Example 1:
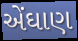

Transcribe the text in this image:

એંઘાણ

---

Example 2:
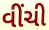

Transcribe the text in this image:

વીંચી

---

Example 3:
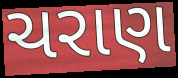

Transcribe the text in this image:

ચરાણ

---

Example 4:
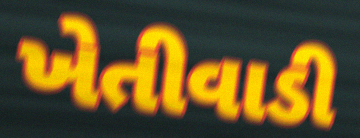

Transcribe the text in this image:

ખેતીવાડી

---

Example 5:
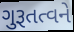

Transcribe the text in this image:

ગુરૂતત્વને